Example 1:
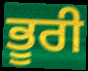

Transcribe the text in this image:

ਭੂਰੀ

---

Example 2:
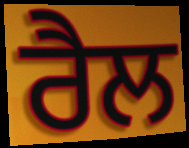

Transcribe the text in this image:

ਰੈਲ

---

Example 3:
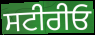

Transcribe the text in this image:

ਸਟੀਰੀਓ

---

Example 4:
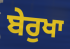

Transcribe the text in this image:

ਬੇਰੁਖਾ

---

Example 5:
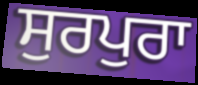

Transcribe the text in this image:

ਸੁਰਪੁਰਾ